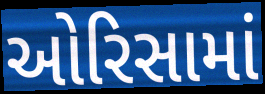
ઓરિસામાં